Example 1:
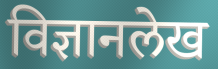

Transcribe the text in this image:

विज्ञानलेख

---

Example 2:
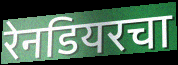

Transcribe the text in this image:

रेनडियरचा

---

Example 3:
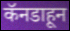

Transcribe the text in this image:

कॅनडाहून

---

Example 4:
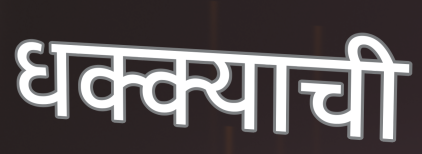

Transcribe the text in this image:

धक्क्याची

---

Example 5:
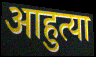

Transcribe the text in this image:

आहुत्या